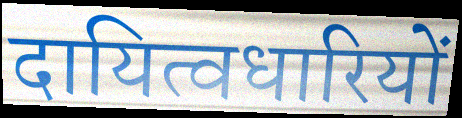
दायित्वधारियों